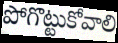
పోగొట్టుకోవాలి